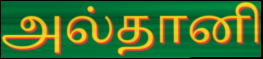
அல்தானி